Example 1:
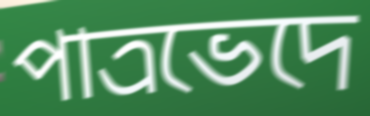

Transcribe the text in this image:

পাত্রভেদে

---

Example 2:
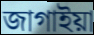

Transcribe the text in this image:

জাগাইয়া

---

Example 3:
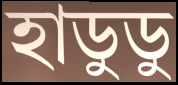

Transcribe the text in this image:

হাডুডু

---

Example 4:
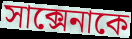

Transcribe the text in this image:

সাক্সেনাকে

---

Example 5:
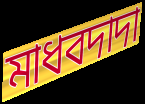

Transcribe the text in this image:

মাধবদাদা